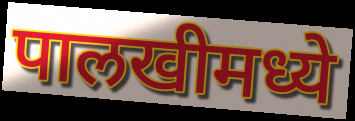
पालखीमध्ये